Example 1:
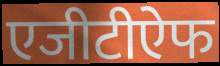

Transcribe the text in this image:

एजीटीऐफ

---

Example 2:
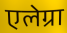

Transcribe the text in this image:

एलेग्रा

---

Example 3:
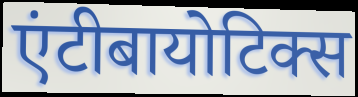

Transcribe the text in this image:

एंटीबायोटिक्स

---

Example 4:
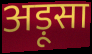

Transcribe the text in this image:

अड़ूसा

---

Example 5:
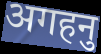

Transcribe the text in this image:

अगहनु